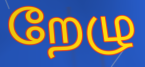
றேழு